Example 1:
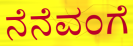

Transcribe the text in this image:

ನೆನೆವಂಗೆ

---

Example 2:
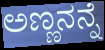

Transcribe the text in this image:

ಅಣ್ಣನನ್ನೆ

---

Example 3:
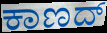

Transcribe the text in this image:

ಕಾಣದ್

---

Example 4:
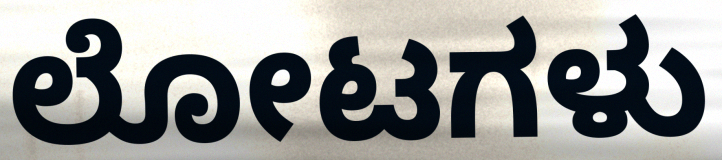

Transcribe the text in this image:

ಲೋಟಗಳು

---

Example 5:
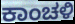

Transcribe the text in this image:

ಕಾಂಚಳಿ